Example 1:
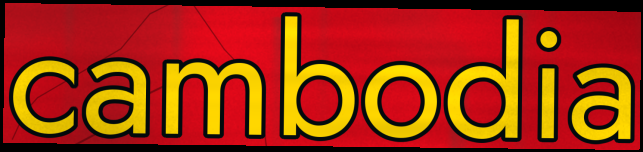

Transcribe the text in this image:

cambodia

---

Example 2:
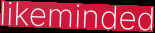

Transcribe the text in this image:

likeminded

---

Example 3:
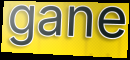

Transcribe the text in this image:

gane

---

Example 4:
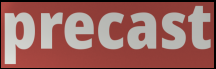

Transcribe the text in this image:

precast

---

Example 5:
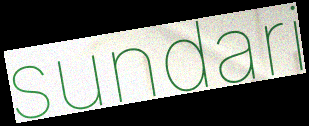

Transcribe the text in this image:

sundari